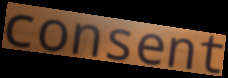
consent